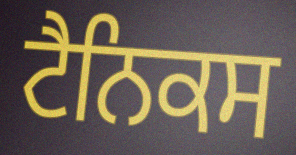
ਟੈਨਿਕਸ